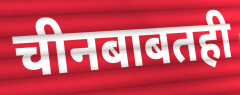
चीनबाबतही